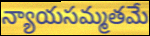
న్యాయసమ్మతమే